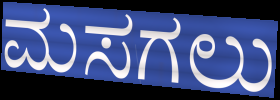
ಮಸಗಲು